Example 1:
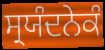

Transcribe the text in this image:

ਸ੍ਰਯੰਦਨੇਕੰ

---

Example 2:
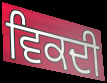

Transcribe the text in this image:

ਵਿਕਦੀ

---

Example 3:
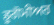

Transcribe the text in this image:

ਡੂਗੋਮੀਅਰ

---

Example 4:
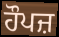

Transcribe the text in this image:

ਹੌਪਜ਼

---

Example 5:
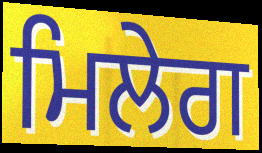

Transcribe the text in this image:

ਮਿਲੇਗ